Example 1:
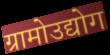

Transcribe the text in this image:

ग्रामोउद्योग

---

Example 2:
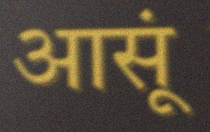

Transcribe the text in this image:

आसूं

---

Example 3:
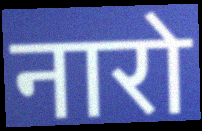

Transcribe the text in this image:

नारो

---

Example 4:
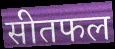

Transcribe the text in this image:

सीतफल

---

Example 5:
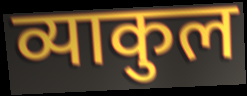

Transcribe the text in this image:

व्याकुल